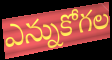
ఎన్నుకోగల